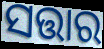
ସତ୍ତାର